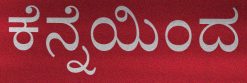
ಕೆನ್ನೆಯಿಂದ